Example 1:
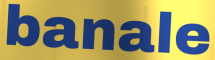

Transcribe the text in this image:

banale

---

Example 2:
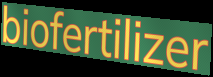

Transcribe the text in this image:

biofertilizer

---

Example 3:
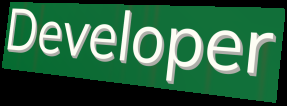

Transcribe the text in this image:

Developer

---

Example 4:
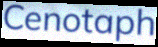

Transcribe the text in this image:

Cenotaph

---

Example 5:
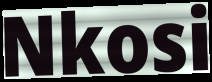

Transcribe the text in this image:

Nkosi